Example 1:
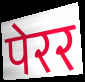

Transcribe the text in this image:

पेरर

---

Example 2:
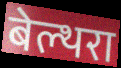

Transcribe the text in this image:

बेल्थरा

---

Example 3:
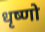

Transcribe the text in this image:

धृष्णो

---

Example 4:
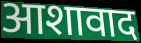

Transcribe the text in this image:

आशावाद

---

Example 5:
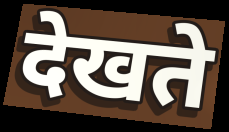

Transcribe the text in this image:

देखते